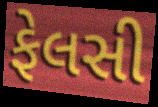
ફેલસી